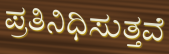
ಪ್ರತಿನಿಧಿಸುತ್ತವೆ